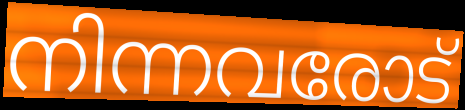
നിന്നവരോട്